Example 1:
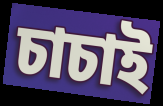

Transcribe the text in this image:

চাচাই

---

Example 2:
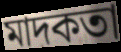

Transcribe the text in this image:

মাদকতা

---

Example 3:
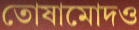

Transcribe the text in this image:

তোষামোদও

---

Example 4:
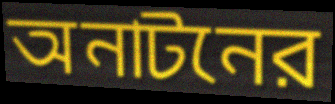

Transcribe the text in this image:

অনাটনের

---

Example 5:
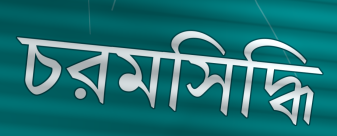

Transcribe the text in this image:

চরমসিদ্ধি